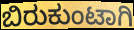
ಬಿರುಕುಂಟಾಗಿ